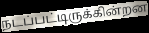
நடப்பட்டிருக்கின்றன